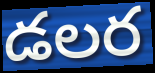
డలర